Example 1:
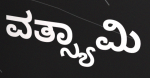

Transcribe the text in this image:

ವತ್ಸ್ಯಾಮಿ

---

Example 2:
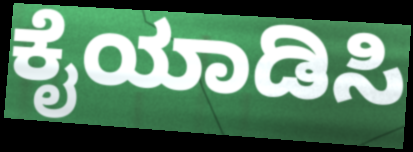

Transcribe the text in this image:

ಕೈಯಾಡಿಸಿ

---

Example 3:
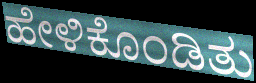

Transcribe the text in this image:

ಹೇಳಿಕೊಂಡಿತು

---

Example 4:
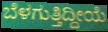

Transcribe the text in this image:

ಬೆಳಗುತ್ತಿದ್ದೀಯೆ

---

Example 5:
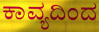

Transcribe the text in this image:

ಕಾವ್ಯದಿಂದ